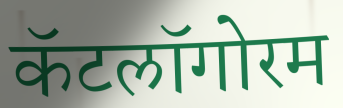
कॅटलॉगोरम